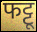
फट्टू